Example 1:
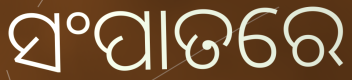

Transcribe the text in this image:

ସଂପାତରେ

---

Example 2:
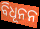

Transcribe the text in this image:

ବିଧୂନନ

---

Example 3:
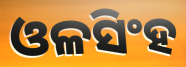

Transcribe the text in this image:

ଓଳସିଂହ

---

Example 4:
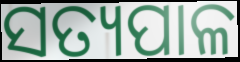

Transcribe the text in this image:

ସତ୍ୟପାଳ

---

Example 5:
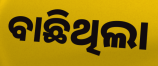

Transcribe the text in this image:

ବାଛିଥିଲା